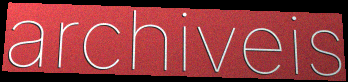
archiveis